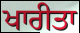
ਖਾਰੀਤਾ